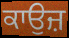
ਕਾਉਜ਼